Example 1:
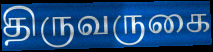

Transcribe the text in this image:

திருவருகை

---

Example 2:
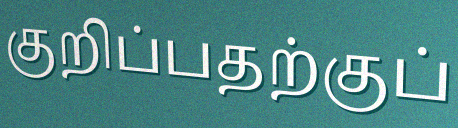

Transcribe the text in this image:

குறிப்பதற்குப்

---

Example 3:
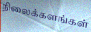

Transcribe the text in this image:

நிலைக்களங்கள்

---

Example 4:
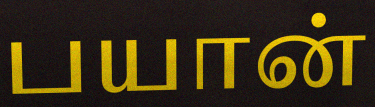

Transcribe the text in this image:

பயான்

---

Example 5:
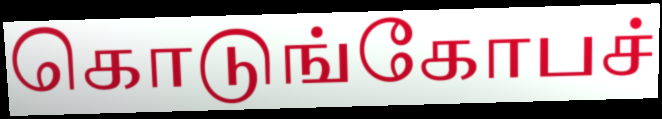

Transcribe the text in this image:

கொடுங்கோபச்